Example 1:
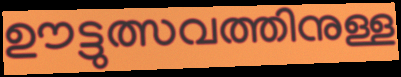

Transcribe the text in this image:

ഊട്ടുത്സവത്തിനുള്ള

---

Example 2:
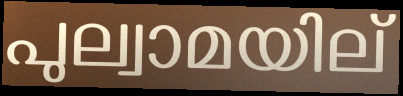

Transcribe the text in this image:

പുല്വാമയില്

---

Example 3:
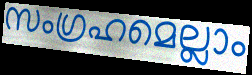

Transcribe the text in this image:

സംഗ്രഹമെല്ലാം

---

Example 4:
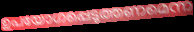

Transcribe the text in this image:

ഉപയോഗപ്പെടുത്തണമെന്ന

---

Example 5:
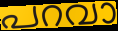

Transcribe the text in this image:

പറവാ